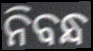
ନିବନ୍ଧ